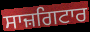
ਸਾਜ਼ਗਿਟਾਰ